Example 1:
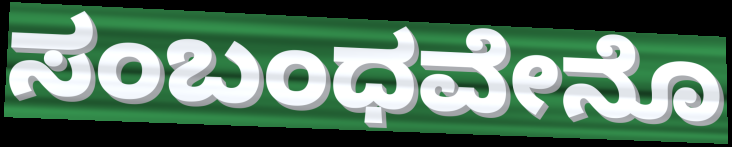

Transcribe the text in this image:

ಸಂಬಂಧವೇನೊ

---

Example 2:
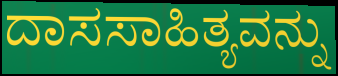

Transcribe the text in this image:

ದಾಸಸಾಹಿತ್ಯವನ್ನು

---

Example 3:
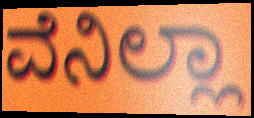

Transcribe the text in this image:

ವೆನಿಲ್ಲಾ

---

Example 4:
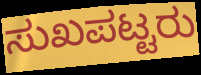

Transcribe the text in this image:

ಸುಖಪಟ್ಟರು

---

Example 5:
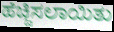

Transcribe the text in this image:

ಹೆಚ್ಚಿಸಲಾಯಿತು